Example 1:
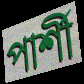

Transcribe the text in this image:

পার্শী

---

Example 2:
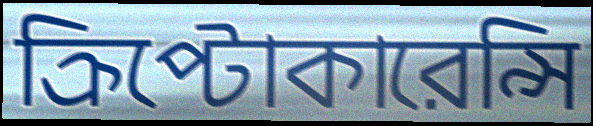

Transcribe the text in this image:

ক্রিপ্টোকারেন্সি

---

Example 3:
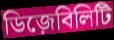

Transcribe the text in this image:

ডিজ়েবিলিটি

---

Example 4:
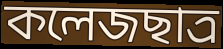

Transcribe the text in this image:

কলেজছাত্র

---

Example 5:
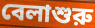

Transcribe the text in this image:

বেলাশুরু